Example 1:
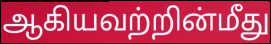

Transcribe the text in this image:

ஆகியவற்றின்மீது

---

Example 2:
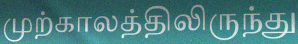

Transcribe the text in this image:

முற்காலத்திலிருந்து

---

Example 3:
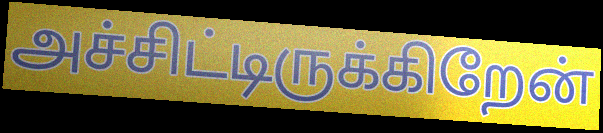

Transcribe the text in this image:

அச்சிட்டிருக்கிறேன்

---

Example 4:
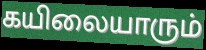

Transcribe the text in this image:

கயிலையாரும்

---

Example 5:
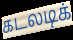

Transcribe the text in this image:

கடலடிக்